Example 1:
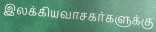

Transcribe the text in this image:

இலக்கியவாசகர்களுக்கு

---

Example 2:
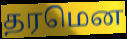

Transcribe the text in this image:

தரமென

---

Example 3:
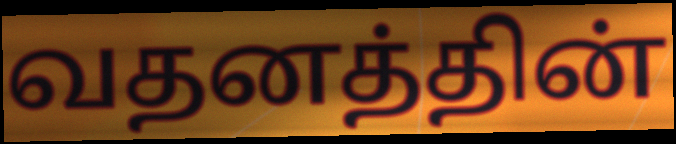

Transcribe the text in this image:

வதனத்தின்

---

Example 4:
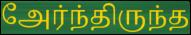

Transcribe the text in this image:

அேர்ந்திருந்த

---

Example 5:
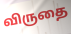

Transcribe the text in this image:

விருதை